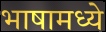
भाषामध्ये